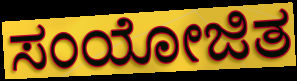
ಸಂಯೋಜಿತ